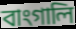
বাংগালি